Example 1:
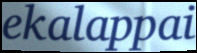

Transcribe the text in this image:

ekalappai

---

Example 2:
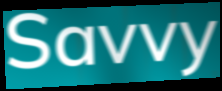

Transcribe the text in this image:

Savvy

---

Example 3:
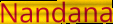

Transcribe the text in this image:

Nandana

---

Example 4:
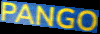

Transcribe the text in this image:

PANGO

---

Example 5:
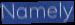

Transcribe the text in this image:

Namely